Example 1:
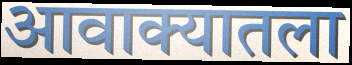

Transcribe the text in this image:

आवाक्यातला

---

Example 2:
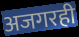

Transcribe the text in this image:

अजगरही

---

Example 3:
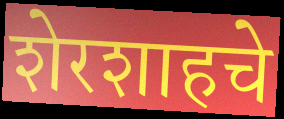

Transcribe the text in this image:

शेरशाहचे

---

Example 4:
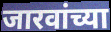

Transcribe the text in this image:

जारवांच्या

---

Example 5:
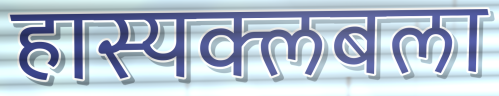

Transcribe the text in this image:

हास्यक्लबला